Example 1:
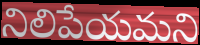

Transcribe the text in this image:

నిలిపేయమని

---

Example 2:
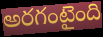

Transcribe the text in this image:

అరగంటైంది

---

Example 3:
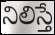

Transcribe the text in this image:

నిలిస్తే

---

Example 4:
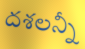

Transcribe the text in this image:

దశలన్నీ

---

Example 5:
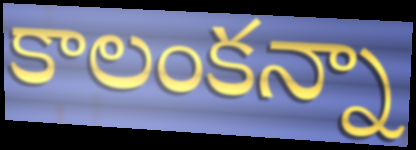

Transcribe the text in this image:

కాలంకన్నా